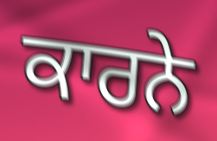
ਕਾਰਨੇ